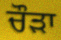
ਚੌੜਾ